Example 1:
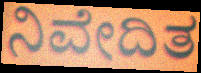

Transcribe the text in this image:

ನಿವೇದಿತ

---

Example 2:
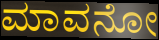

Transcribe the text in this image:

ಮಾವನೋ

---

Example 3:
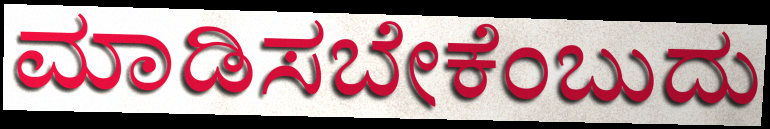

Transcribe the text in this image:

ಮಾಡಿಸಬೇಕೆಂಬುದು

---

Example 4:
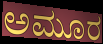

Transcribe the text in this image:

ಅಮೂರ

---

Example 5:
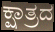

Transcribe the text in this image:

ಕ್ಷಾತ್ರದ